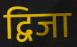
द्विजा